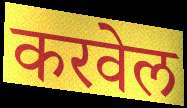
करवेल